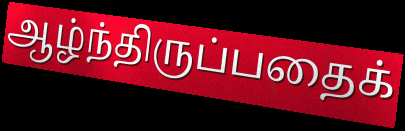
ஆழ்ந்திருப்பதைக்